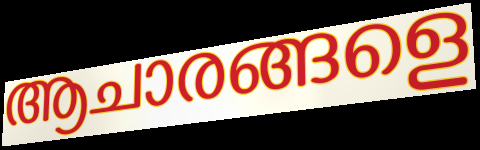
ആചാരങ്ങളെ